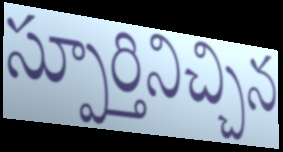
స్పూర్తినిచ్చిన